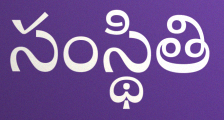
సంస్థితి